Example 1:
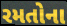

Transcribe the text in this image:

રમતોના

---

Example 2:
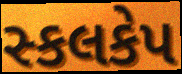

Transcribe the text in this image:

સ્કલકેપ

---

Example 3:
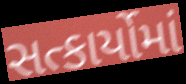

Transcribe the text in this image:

સત્કાર્યોમાં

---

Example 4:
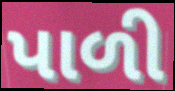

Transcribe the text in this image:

પાળી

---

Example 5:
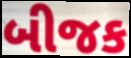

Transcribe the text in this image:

બીજક